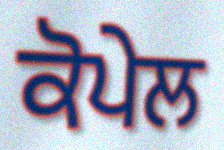
ਕੋਪੇਲ